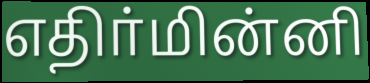
எதிர்மின்னி